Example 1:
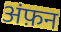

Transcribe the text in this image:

अंफ़न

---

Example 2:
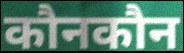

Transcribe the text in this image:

कौनकौन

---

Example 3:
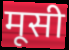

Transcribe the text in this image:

मूसी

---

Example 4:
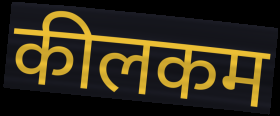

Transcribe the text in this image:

कीलकम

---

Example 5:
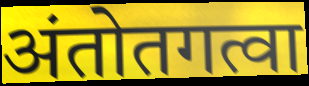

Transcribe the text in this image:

अंतोतगत्वा